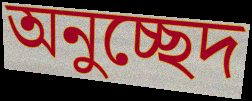
অনুচ্ছেদ